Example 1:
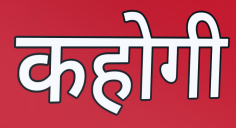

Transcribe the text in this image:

कहोगी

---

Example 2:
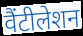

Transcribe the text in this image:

वैंटीलेशन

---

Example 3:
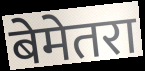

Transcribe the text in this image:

बेमेतरा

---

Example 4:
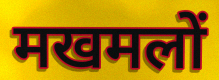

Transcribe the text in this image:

मखमलों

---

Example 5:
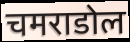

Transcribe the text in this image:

चमराडोल